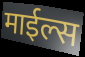
माईल्स